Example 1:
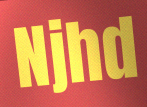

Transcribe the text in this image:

Njhd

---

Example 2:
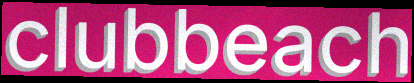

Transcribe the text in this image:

clubbeach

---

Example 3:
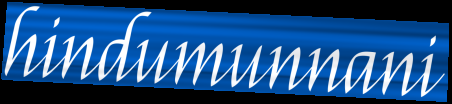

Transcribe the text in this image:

hindumunnani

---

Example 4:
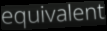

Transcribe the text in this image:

equivalent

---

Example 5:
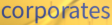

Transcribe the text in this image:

corporates